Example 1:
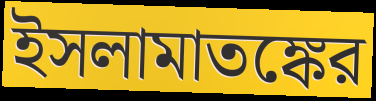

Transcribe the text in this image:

ইসলামাতঙ্কের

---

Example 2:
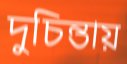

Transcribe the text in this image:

দুচিন্তায়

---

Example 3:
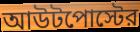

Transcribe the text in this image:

আউটপোস্টের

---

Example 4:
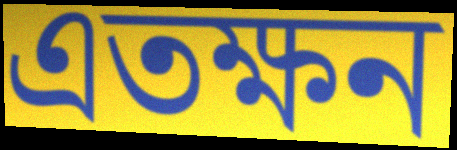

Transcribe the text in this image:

এতক্ষন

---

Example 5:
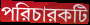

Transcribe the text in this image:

পরিচারকটি